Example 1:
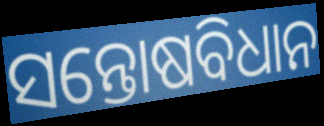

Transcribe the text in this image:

ସନ୍ତୋଷବିଧାନ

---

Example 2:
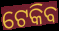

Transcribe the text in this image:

ଟେକିବ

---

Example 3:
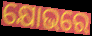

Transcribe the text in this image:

କ୍ଷୋଭରେ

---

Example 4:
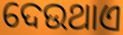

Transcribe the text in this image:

ଦେଉଥାଏ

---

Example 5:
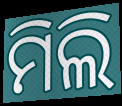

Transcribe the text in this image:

ମିଲି